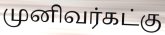
முனிவர்கட்கு